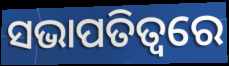
ସଭାପତିତ୍ଵରେ